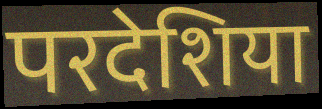
परदेशिया